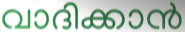
വാദിക്കാൻ